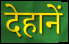
देहानें